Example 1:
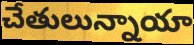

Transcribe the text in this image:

చేతులున్నాయా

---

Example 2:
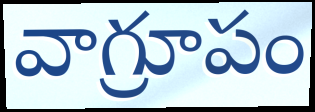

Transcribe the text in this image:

వాగ్రూపం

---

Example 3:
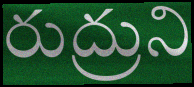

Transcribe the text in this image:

రుద్రుని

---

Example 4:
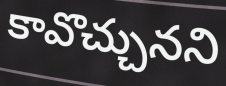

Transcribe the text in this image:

కావొచ్చునని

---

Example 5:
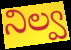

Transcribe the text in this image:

నిల్వ